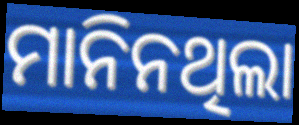
ମାନିନଥିଲା